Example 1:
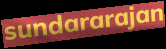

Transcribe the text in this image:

sundararajan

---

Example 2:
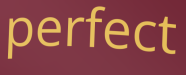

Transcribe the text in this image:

perfect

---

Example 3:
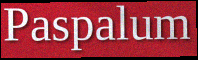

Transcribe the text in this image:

Paspalum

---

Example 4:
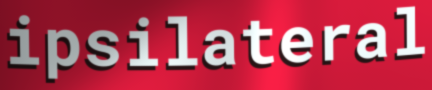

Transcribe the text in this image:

ipsilateral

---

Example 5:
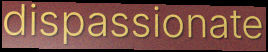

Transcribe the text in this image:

dispassionate